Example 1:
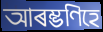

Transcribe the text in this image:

আৰম্ভণিহে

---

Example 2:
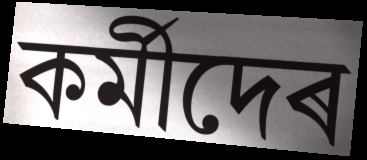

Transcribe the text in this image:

কৰ্মীদেৰ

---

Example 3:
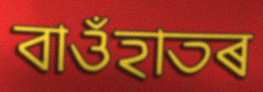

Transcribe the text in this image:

বাওঁহাতৰ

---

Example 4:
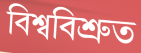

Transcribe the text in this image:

বিশ্ববিশ্ৰুত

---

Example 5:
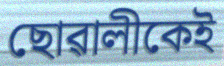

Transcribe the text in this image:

ছোৱালীকেই